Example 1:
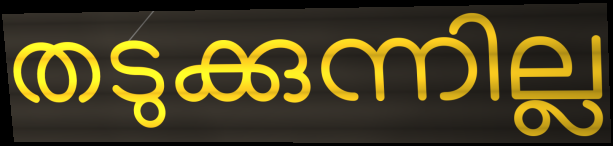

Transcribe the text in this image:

തടുക്കുന്നില്ല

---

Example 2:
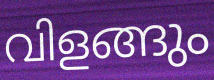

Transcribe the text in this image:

വിളങ്ങും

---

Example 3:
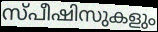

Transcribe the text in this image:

സ്പീഷിസുകളും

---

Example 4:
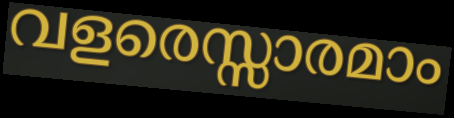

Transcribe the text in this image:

വളരെസ്സാരമാം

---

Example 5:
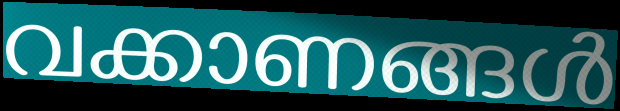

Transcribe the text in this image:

വക്കാണങ്ങൾ